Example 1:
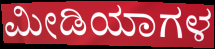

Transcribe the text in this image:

ಮೀಡಿಯಾಗಳ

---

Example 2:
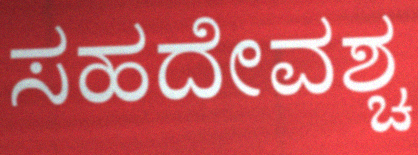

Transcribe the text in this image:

ಸಹದೇವಶ್ಚ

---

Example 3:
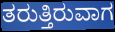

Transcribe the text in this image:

ತರುತ್ತಿರುವಾಗ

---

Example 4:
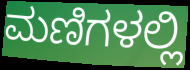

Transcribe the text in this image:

ಮಣಿಗಳಲ್ಲಿ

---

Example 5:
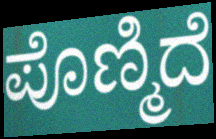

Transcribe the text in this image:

ಪೊಣ್ಮಿದೆ